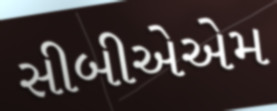
સીબીએએમ